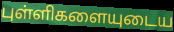
புள்ளிகளையுடைய